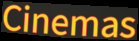
Cinemas